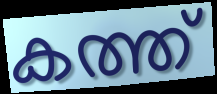
കത്ത്